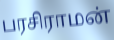
பரசிராமன்